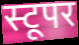
स्टूपर